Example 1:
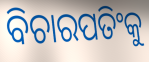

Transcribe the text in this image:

ବିଚାରପତିଂକୁ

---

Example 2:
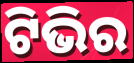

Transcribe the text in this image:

ଟିଭିର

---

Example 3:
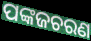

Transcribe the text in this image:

ପଙ୍କଜଚରଣ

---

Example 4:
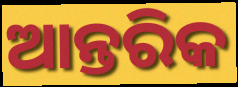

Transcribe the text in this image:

ଆନ୍ତରିକ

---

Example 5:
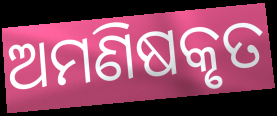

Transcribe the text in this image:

ଅମଣିଷକୃତ